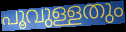
പൂവുള്ളതും